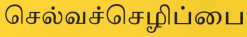
செல்வச்செழிப்பை